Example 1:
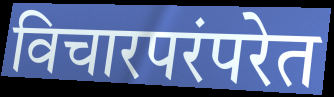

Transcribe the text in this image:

विचारपरंपरेत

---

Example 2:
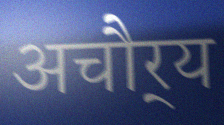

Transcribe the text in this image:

अचौर्य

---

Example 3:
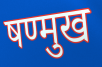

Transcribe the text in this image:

षण्मुख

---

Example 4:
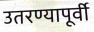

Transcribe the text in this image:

उतरण्यापूर्वी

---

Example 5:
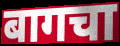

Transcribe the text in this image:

बागचा